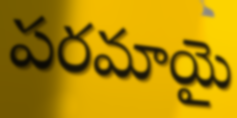
పరమాయై